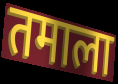
तमाला